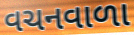
વચનવાળા